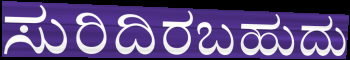
ಸುರಿದಿರಬಹುದು